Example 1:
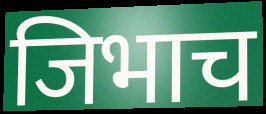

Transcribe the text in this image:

जिभाच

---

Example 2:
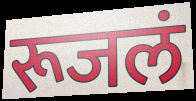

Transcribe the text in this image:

रूजलं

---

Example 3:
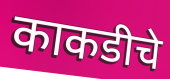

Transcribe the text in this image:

काकडीचे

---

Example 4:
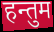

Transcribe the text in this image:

हन्तुम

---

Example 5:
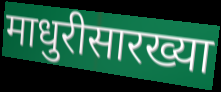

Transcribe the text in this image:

माधुरीसारख्या